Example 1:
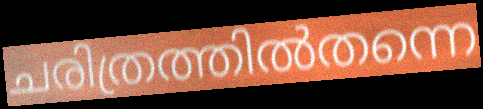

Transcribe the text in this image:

ചരിത്രത്തിൽതന്നെ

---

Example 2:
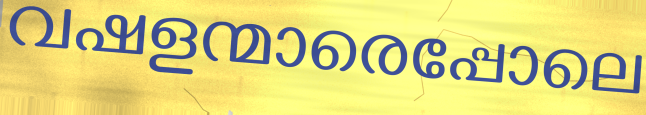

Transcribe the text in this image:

വഷളന്മാരെപ്പോലെ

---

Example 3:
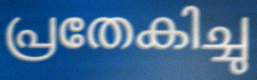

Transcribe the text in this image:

പ്രതേകിച്ചു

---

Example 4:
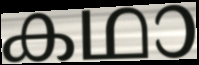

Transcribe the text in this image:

കഥാ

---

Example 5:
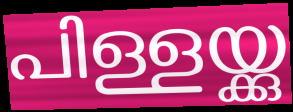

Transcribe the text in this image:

പിള്ളയ്ക്കു